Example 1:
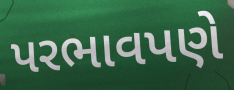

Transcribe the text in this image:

પરભાવપણે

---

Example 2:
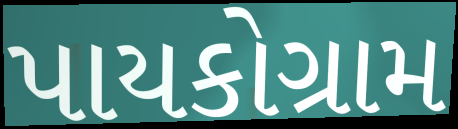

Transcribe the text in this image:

પાયકોગ્રામ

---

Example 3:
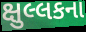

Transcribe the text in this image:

ક્ષુલ્લકના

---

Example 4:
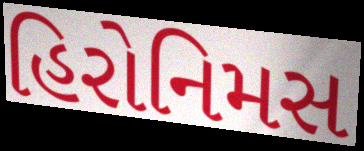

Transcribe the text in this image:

હિરોનિમસ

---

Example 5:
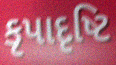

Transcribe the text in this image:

કૃપાદૃષ્ટિ